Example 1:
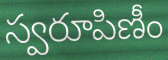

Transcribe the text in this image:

స్వరూపిణీం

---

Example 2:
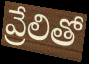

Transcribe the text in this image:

వ్రేలితో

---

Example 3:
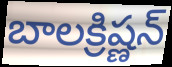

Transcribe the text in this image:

బాలక్రిష్ణన్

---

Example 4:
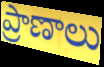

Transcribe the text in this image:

ప్రాణాలు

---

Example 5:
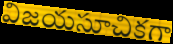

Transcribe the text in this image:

విజయసూచికగా